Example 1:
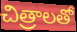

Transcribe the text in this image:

చిత్రాలతో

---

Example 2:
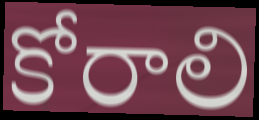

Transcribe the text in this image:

కోరాలి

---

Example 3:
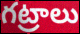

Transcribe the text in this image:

గట్రాలు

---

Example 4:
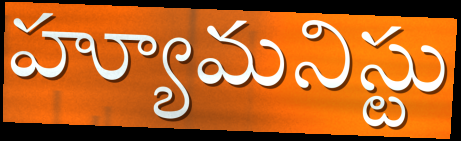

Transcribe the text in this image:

హ్యూమనిస్టు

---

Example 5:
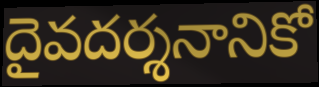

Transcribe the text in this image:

దైవదర్శనానికో